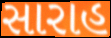
સારાહ